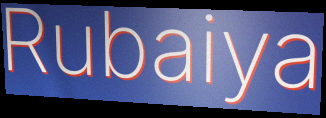
Rubaiya